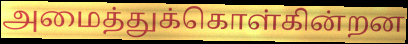
அமைத்துக்கொள்கின்றன